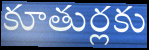
కూతుర్లకు